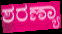
ಶರಣ್ಯಾ